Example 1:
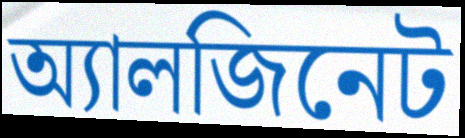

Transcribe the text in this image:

অ্যালজিনেট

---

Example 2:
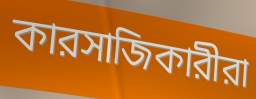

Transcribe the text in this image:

কারসাজিকারীরা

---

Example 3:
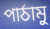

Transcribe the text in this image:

পাঠামু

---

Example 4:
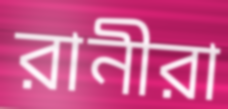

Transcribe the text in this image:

রানীরা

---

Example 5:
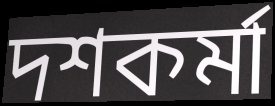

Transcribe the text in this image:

দশকর্মা